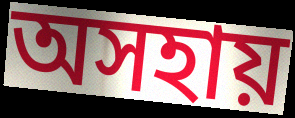
অসহায়